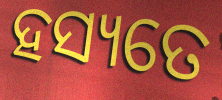
ହସ୍ୟତେ